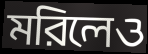
মরিলেও